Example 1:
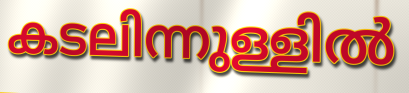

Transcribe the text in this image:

കടലിന്നുള്ളിൽ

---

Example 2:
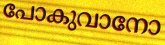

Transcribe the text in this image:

പോകുവാനോ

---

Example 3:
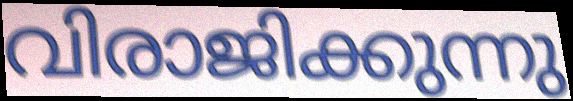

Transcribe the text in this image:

വിരാജിക്കുന്നു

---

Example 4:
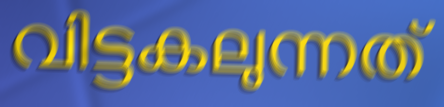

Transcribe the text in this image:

വിട്ടകലുന്നത്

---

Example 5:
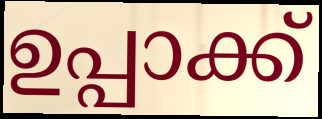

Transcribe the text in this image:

ഉപ്പാക്ക്